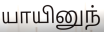
யாயினுந்